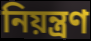
নিয়ন্ত্ৰণ